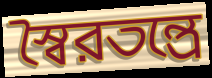
স্বৈরতন্ত্রে